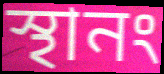
স্থানং